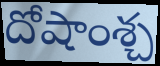
దోషాంశ్చ